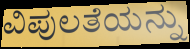
ವಿಪುಲತೆಯನ್ನು